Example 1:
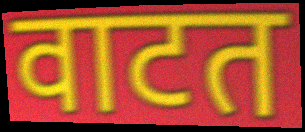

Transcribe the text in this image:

वाटत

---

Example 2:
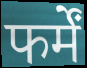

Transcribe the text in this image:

फर्में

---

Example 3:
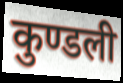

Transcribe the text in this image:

कुण्डली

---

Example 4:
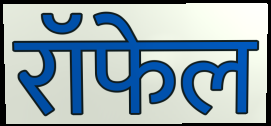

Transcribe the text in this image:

रॉफेल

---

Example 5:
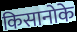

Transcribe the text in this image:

किसानोके